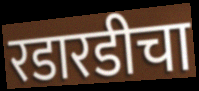
रडारडीचा